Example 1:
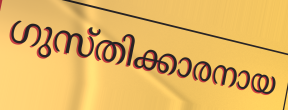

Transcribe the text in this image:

ഗുസ്തിക്കാരനായ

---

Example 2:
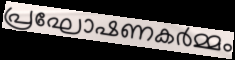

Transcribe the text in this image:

പ്രഘോഷണകർമ്മം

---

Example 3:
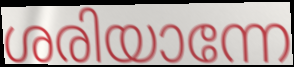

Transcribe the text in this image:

ശരിയാന്നേ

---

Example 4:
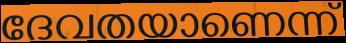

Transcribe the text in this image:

ദേവതയാണെന്ന്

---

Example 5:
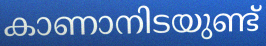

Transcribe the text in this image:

കാണാനിടയുണ്ട്